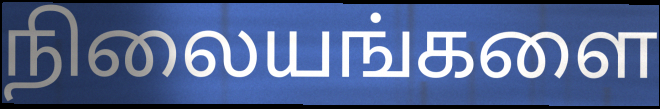
நிலையங்களை